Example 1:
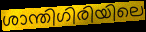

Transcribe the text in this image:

ശാന്തിഗിരിയിലെ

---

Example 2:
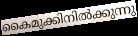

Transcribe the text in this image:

കൈമുക്കിനിൽക്കുന്നു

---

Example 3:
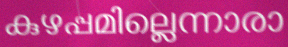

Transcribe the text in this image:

കുഴപ്പമില്ലെന്നാരാ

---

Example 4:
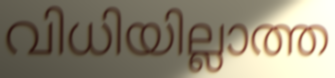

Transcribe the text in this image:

വിധിയില്ലാത്ത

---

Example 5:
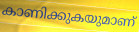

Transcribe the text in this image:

കാണിക്കുകയുമാണ്